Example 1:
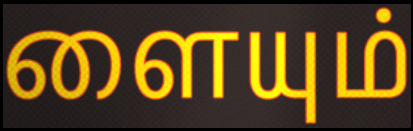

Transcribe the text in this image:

ளையும்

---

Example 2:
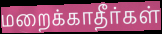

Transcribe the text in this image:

மறைக்காதீர்கள்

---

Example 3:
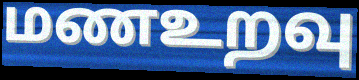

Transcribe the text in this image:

மணஉறவு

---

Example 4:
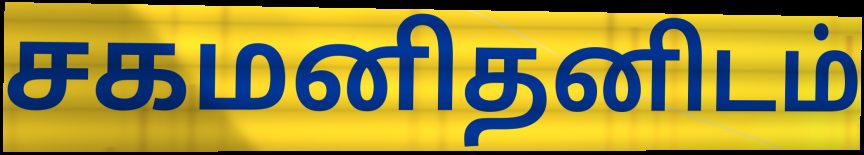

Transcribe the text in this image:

சகமனிதனிடம்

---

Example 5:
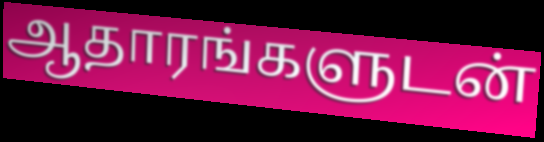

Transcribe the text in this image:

ஆதாரங்களுடன்